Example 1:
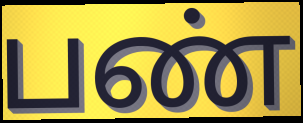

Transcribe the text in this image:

பண்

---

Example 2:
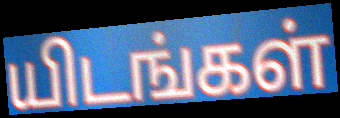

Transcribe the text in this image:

யிடங்கள்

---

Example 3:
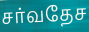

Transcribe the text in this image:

சர்வதேச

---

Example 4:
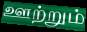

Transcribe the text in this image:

ஊற்றும்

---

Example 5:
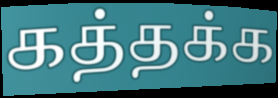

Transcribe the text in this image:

கத்தக்க